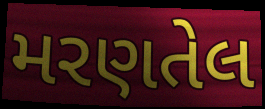
મરણતેલ